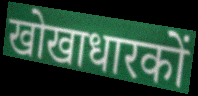
खोखाधारकों